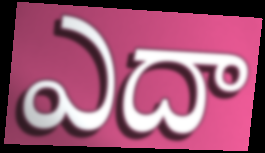
ఎదా